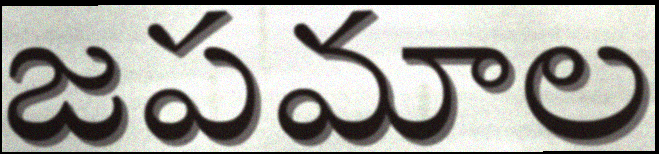
జపమాల